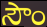
సౌం